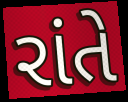
રાંતે